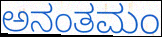
ಅನಂತಮಂ